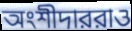
অংশীদাররাও